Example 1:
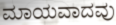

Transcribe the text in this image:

ಮಾಯವಾದವು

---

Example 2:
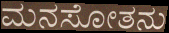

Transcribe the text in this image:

ಮನಸೋತನು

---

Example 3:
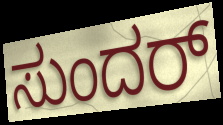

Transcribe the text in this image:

ಸುಂದರ್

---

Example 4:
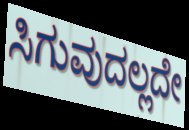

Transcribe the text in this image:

ಸಿಗುವುದಲ್ಲದೇ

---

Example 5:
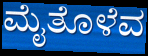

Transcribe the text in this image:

ಮೈತೊಳೆವ